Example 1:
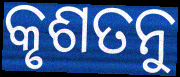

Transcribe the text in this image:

କୃଶତନୁ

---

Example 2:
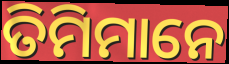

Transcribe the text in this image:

ତିମିମାନେ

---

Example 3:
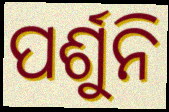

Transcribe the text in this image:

ପର୍ଶୁନି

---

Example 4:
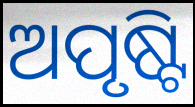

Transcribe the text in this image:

ଅପୃଷ୍ଟି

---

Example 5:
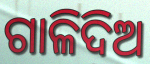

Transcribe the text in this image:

ଗାଳିଦିଅ